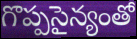
గొప్పసైన్యంతో